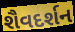
શૈવદર્શન